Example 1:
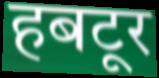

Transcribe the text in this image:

हबटूर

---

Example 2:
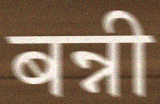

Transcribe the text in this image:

बन्नी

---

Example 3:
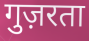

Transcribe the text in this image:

गुज़रता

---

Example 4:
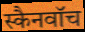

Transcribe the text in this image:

स्कैनवॉच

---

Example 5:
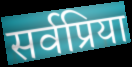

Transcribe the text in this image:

सर्वप्रिया